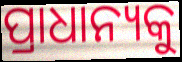
ପ୍ରାଧାନ୍ୟକୁ